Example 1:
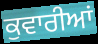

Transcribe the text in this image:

ਕੁਵਾਰੀਆਂ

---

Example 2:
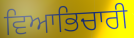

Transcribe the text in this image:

ਵਿਆਭਿਚਾਰੀ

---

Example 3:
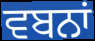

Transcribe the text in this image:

ਵਬਨਾਂ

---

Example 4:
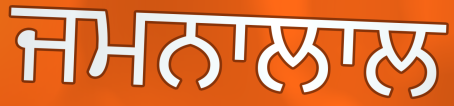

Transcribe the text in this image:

ਜਮਨਾਲਾਲ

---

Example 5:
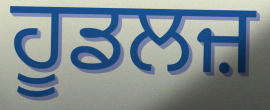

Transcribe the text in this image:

ਹੂਡਲਜ਼